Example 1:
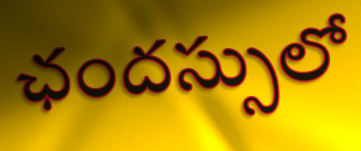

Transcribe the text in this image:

ఛందస్సులో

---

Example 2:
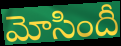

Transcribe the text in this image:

మోసిందీ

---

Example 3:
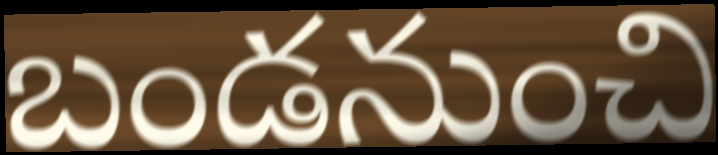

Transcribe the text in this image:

బండనుంచి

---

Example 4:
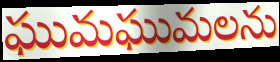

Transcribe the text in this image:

ఘుమఘుమలను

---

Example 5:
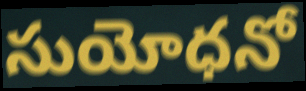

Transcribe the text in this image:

సుయోధనో